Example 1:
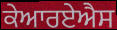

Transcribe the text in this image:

ਕੇਆਰਏਐਸ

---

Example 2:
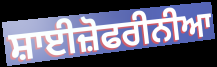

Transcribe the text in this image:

ਸ਼ਾਈਜ਼ੋਫਰੀਨੀਆ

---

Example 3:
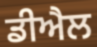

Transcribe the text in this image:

ਡੀਐਲ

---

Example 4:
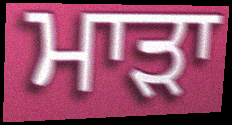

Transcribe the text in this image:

ਮਾਡ਼ਾ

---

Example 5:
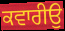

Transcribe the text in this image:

ਕਵਾਰੀਉ